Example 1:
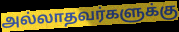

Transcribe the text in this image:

அல்லாதவர்களுக்கு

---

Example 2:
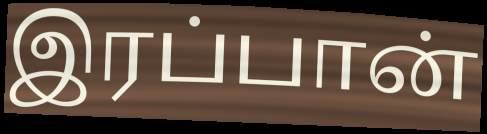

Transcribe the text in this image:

இரப்பான்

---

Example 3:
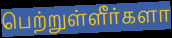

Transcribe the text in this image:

பெற்றுள்ளீர்களா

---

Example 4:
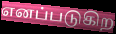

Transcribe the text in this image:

எனப்படுகிற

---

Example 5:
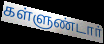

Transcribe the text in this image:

கள்ளுண்டார்